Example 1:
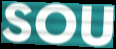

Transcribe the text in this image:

SOU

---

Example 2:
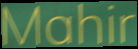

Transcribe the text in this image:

Mahir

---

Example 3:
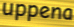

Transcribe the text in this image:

uppena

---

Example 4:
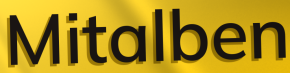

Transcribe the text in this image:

Mitalben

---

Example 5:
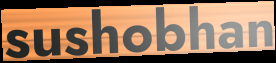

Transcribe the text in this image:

sushobhan